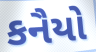
કનૈયો